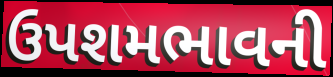
ઉપશમભાવની